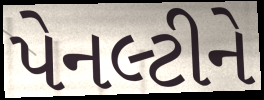
પેનલ્ટીને